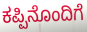
ಕಪ್ಪಿನೊಂದಿಗೆ